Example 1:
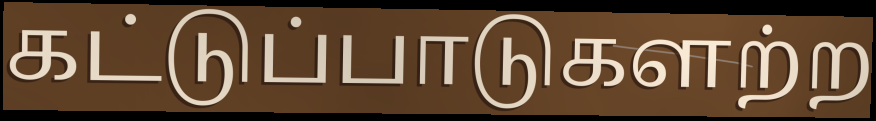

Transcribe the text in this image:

கட்டுப்பாடுகளற்ற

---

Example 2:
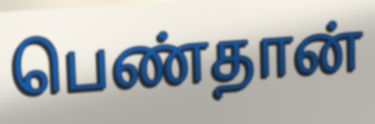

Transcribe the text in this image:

பெண்தான்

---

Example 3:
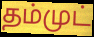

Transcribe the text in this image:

தம்முட்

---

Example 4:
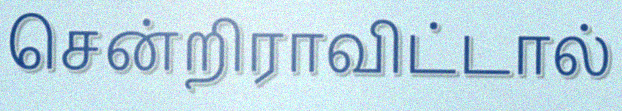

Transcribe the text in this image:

சென்றிராவிட்டால்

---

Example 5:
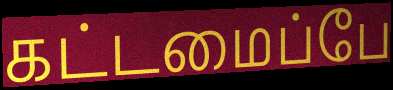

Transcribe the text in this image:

கட்டமைப்பே